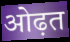
ओढ़त